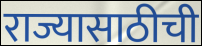
राज्यासाठीची